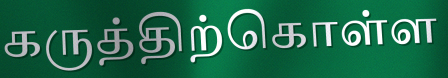
கருத்திற்கொள்ள